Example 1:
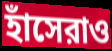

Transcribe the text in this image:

হাঁসেরাও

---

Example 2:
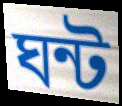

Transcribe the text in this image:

ঘন্ট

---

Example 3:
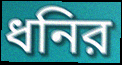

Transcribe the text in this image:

ধনির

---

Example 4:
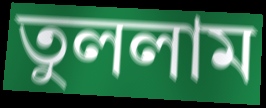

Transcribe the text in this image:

তুললাম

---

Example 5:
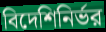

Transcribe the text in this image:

বিদেশিনির্ভর